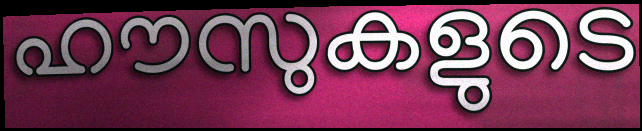
ഹൗസുകളുടെ